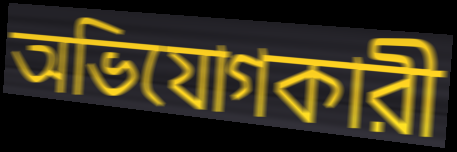
অভিযোগকারী